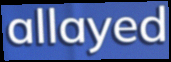
allayed